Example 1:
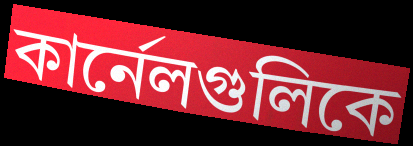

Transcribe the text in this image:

কার্নেলগুলিকে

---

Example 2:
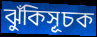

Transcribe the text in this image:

ঝুঁকিসূচক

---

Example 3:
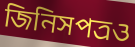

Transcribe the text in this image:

জিনিসপত্রও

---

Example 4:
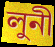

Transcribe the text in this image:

লুনী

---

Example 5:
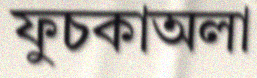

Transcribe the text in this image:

ফুচকাঅলা